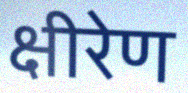
क्षीरेण